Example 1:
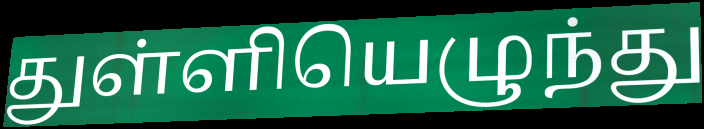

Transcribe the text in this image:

துள்ளியெழுந்து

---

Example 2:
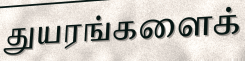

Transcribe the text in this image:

துயரங்களைக்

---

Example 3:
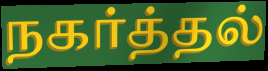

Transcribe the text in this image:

நகர்த்தல்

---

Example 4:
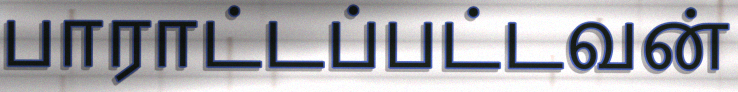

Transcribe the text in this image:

பாராட்டப்பட்டவன்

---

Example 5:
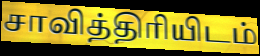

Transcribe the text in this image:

சாவித்திரியிடம்